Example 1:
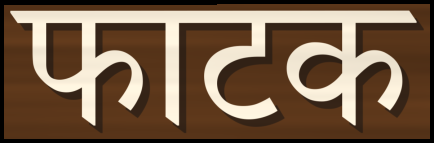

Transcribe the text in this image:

फाटक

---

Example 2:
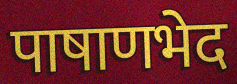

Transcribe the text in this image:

पाषाणभेद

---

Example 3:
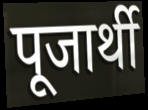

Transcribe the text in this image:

पूजार्थी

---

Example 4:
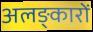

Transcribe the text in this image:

अलङ्कारों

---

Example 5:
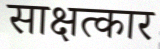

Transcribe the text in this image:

साक्षत्कार